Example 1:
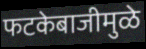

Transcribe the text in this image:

फटकेबाजीमुळे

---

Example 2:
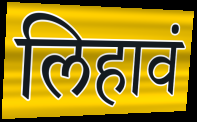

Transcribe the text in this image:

लिहावं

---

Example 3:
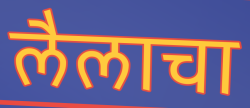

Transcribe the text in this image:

लैलाचा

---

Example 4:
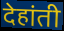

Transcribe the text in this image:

देहांती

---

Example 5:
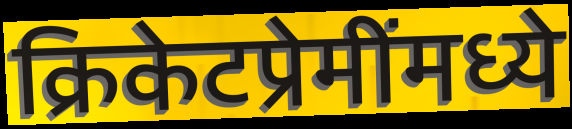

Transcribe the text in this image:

क्रिकेटप्रेमींमध्ये